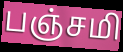
பஞ்சமி